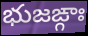
భుజఙ్గాః